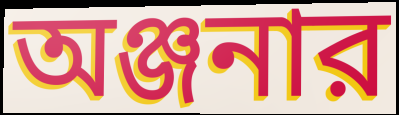
অঞ্জনার